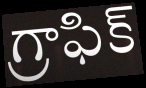
గ్రాఫిక్